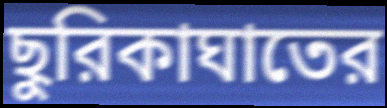
ছুরিকাঘাতের